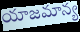
యాజమాన్య